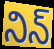
నిన్